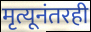
मृत्यूनंतरही